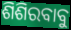
ଶିଶିରବାବୁ